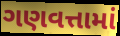
ગણવત્તામાં